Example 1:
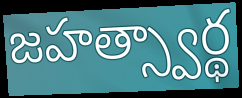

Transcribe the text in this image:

జహత్స్వార్థ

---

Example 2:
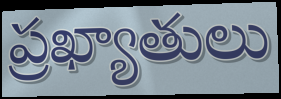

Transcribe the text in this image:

ప్రఖ్యాతులు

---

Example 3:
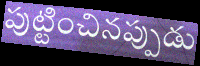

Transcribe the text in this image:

పుట్టించినప్పుడు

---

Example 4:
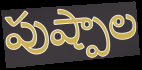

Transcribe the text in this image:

పుష్పాల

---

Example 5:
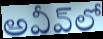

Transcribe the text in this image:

అవీవ్‌లో